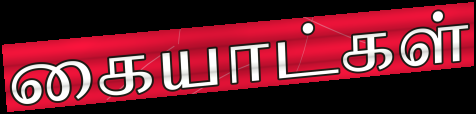
கையாட்கள்